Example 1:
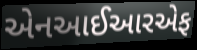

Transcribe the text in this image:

એનઆઈઆરએફ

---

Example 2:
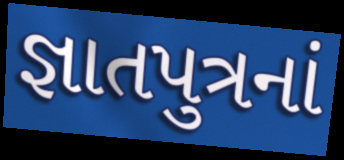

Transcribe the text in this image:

જ્ઞાતપુત્રનાં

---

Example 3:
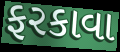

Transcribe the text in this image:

ફરકાવા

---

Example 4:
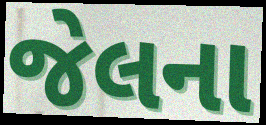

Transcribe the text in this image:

જેલના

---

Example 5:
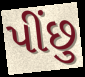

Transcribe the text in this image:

પીંછુ